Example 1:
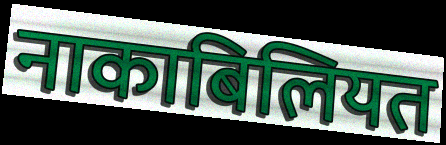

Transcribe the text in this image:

नाकाबिलियत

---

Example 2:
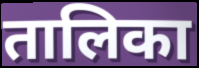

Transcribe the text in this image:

तालिका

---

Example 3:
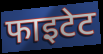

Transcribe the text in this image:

फाइटेट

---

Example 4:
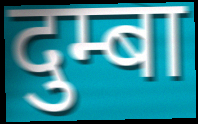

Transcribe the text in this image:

दुम्बा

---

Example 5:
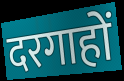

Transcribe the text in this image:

दरगाहों